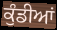
ਕੁੰਡੀਆਂ